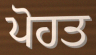
ਪੋਹਤ